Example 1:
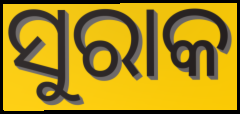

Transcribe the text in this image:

ସୁରାକ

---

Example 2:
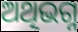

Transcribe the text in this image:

ଅଥିଭଗ୍ନ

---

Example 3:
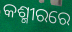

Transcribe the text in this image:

କଶ୍ମୀରରେ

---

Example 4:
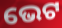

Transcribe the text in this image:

ଭେଟ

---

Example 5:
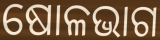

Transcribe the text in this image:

ଷୋଳଭାଗ